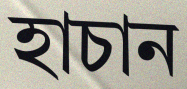
হাচান